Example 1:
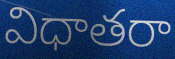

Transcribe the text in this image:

విధాతరా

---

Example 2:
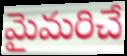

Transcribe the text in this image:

మైమరిచే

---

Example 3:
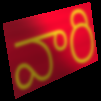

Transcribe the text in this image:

వారి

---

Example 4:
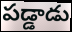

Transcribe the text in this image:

పడ్డాడు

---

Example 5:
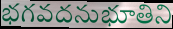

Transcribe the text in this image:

భగవదనుభూతిని